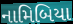
નામિબિયા